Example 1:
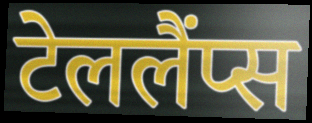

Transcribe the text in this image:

टेललैंप्स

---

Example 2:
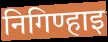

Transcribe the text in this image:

निगिण्हाइ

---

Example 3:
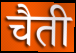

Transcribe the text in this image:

चैती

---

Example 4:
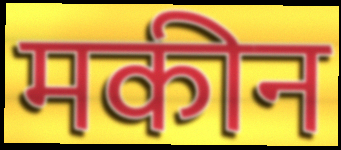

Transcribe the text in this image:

मकीन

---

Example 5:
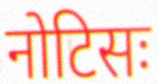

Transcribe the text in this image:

नोटिसः